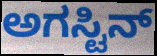
ಅಗಸ್ಟಿನ್